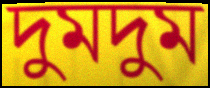
দুমদুম